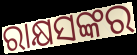
ରାକ୍ଷସଙ୍କର